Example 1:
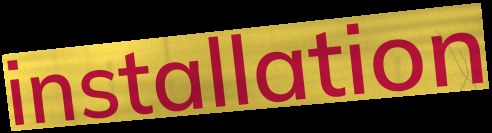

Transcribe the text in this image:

installation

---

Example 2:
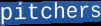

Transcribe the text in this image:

pitchers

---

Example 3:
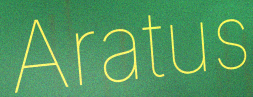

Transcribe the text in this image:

Aratus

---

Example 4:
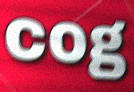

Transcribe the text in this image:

cog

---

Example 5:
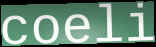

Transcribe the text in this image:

coeli